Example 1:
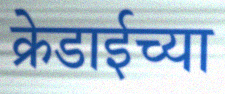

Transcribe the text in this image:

क्रेडाईच्या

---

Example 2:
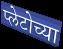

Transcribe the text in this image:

प्लेटोच्या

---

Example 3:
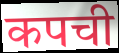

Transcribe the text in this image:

कपची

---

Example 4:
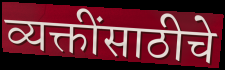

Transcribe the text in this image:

व्यक्तींसाठीचे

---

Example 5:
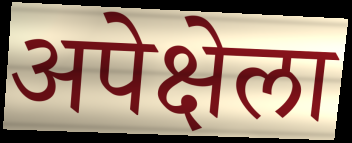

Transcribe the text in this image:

अपेक्षेला